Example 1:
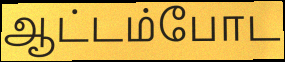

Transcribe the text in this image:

ஆட்டம்போட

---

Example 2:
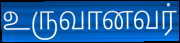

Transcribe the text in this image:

உருவானவர்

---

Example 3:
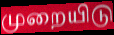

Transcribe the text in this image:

முறையிடு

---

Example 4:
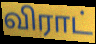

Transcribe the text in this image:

விராட்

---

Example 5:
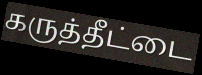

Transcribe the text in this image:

கருத்தீட்டை